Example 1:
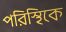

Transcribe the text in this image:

পরিস্থিকে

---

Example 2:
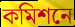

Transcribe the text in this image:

কমিশনে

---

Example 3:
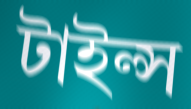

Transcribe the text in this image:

টাইল্স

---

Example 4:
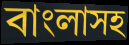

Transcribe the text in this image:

বাংলাসহ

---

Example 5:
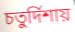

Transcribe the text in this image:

চতুর্দিশায়